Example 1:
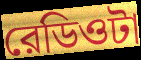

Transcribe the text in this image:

রেডিওটা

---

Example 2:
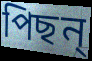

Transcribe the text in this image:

পিছন্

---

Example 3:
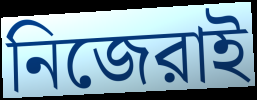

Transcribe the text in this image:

নিজেরাই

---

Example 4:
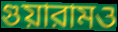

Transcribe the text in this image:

গুয়ারামও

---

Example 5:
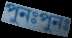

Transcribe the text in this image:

পুনঃপুনঃ